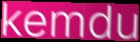
kemdu